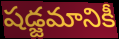
షడ్జమానికీ